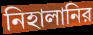
নিহালানির